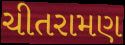
ચીતરામણ